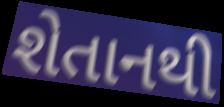
શેતાનથી